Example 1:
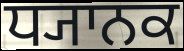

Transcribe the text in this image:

ਧ੍ਯਾਨਕ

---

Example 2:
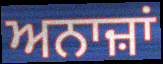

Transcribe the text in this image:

ਅਨਾਜ਼ਾਂ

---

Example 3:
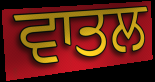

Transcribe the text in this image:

ਵਾਤਲ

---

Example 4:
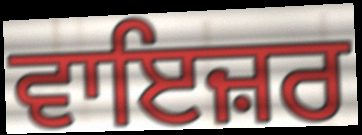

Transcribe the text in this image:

ਵਾਇਜ਼ਰ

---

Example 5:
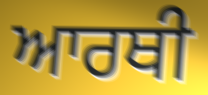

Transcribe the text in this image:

ਆਰਥੀ